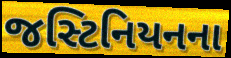
જસ્ટિનિયનના